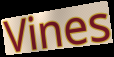
Vines